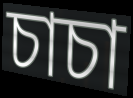
চাচা